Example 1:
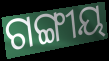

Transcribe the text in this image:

ଗଙ୍ଗୀୟ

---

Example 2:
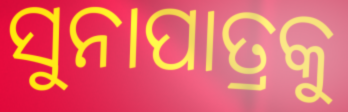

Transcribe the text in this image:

ସୁନାପାତ୍ରକୁ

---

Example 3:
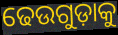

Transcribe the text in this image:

ଢେଉଗୁଡ଼ାକୁ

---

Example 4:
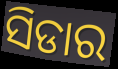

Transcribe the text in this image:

ସିଡାର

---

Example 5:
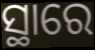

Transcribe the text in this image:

ସ୍ଥାରେ